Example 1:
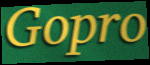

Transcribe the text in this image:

Gopro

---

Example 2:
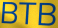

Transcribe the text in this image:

BTB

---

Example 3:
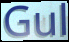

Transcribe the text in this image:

Gul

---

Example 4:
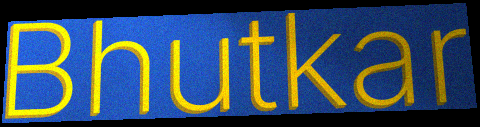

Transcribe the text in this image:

Bhutkar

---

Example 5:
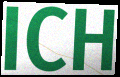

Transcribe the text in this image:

ICH